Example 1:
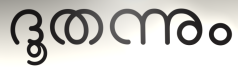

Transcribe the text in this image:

ദൂതന്നും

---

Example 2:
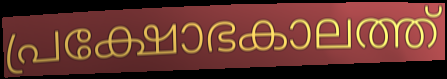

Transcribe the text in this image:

പ്രക്ഷോഭകാലത്ത്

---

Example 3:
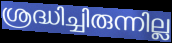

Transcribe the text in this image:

ശ്രദ്ധിച്ചിരുന്നില്ല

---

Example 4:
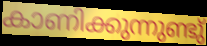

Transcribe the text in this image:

കാണിക്കുന്നുണ്ടു്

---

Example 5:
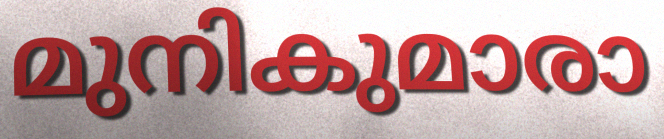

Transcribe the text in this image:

മുനികുമാരാ